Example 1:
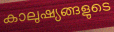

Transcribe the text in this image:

കാലുഷ്യങ്ങളുടെ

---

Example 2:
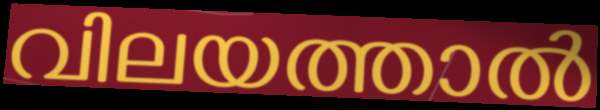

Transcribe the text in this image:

വിലയത്താൽ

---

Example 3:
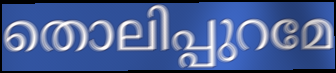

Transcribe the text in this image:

തൊലിപ്പുറമേ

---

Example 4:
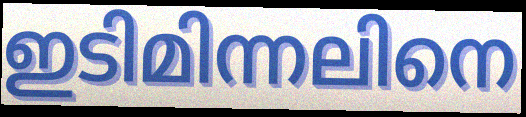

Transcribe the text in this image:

ഇടിമിന്നലിനെ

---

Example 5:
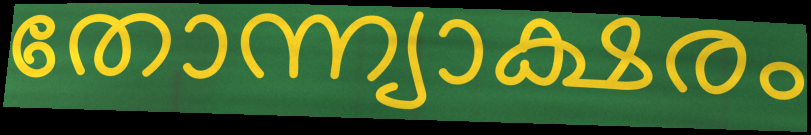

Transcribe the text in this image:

തോന്ന്യാക്ഷരം